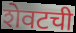
शेवटची